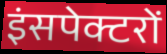
इंसपेक्टरों